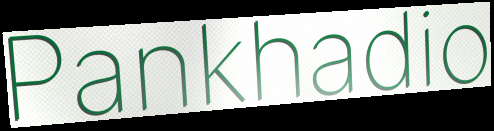
Pankhadio